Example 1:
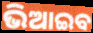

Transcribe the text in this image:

ଭିଆଇବ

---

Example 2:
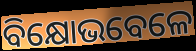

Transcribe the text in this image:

ବିକ୍ଷୋଭବେଳେ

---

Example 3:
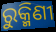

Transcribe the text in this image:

ରୁକ୍ମିଣୀ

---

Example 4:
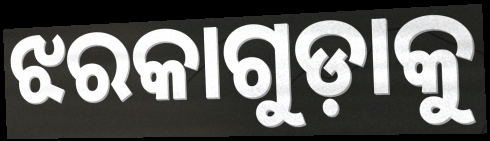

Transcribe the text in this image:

ଝରକାଗୁଡ଼ାକୁ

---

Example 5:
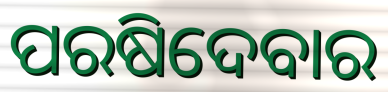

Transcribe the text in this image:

ପରଷିଦେବାର